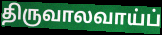
திருவாலவாய்ப்